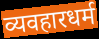
व्यवहारधर्म